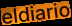
eldiario